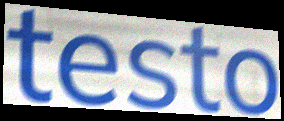
testo